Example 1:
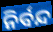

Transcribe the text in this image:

ନିର୍ବନ୍ଦ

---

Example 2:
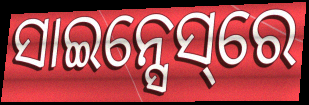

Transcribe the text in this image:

ସାଇନ୍ସେସ୍‌ରେ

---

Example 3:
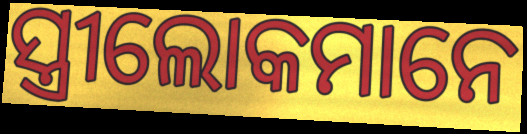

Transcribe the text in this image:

ସ୍ତ୍ରୀଲୋକମାନେ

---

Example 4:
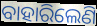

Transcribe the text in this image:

ବାହାରିଲେଣି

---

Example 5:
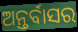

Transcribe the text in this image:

ଅନ୍ତର୍ବାସର